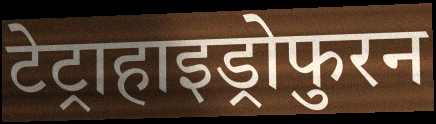
टेट्राहाइड्रोफुरन